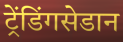
ट्रेंडिंगसेडान